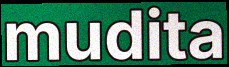
mudita